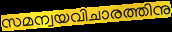
സമന്വയവിചാരത്തിനു